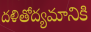
దళితోద్యమానికి